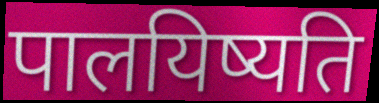
पालयिष्यति